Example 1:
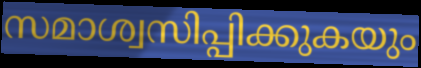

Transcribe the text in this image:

സമാശ്വസിപ്പിക്കുകയും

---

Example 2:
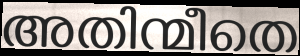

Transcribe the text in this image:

അതിന്മീതെ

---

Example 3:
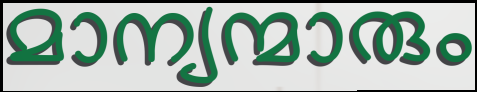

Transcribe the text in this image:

മാന്യന്മാരും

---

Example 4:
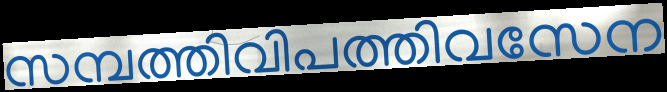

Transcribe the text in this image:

സമ്പത്തിവിപത്തിവസേന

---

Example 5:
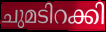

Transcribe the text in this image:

ചുമടിറക്കി